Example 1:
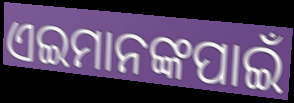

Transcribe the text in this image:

ଏଇମାନଙ୍କପାଇଁ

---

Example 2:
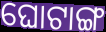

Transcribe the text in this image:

ଘୋଟାଙ୍ଗ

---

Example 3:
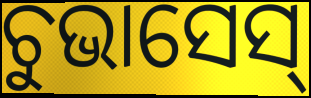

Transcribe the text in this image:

ଚୁଭାସେସ୍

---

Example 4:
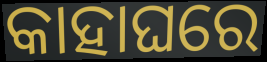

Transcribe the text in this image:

କାହାଘରେ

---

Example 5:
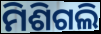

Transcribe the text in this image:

ମିଶିଗଲି